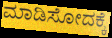
ಮಾಡಿಸೋದಕ್ಕೆ